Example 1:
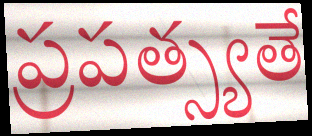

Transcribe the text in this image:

ప్రపత్స్యతే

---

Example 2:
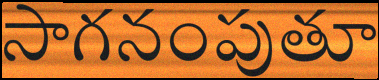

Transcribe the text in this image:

సాగనంపుతూ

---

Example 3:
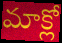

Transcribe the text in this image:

మాక్లో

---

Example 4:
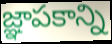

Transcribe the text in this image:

జ్ఞాపకాన్ని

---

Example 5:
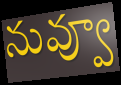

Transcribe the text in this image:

నువ్వూ